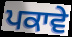
ਪਕਾਵੇ